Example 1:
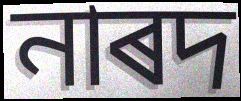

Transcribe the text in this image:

নাৰদ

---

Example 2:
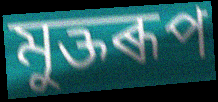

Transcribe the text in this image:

মুক্তৰূপ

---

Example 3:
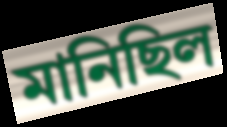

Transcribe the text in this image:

মানিছিল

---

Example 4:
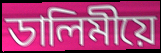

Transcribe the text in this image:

ডালিমীয়ে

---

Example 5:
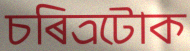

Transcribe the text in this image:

চৰিত্ৰটোক